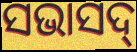
ସଭାସଦ୍